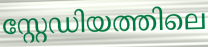
സ്റ്റേഡിയത്തിലെ